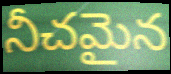
నీచమైన